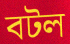
বটল